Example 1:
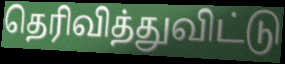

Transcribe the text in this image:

தெரிவித்துவிட்டு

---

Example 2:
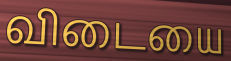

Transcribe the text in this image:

விடையை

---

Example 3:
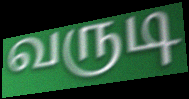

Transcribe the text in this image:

வருடி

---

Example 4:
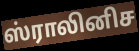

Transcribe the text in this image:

ஸ்ராலினிச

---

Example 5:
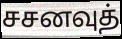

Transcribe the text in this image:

சசனவுத்